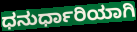
ಧನುರ್ಧಾರಿಯಾಗಿ